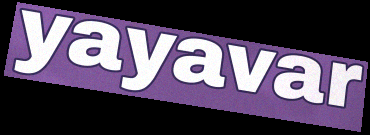
yayavar